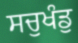
ਸਚੁਖੰਡੁ